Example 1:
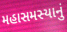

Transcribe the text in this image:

મહાસમસ્યાનું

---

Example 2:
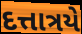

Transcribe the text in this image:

દત્તાત્રયે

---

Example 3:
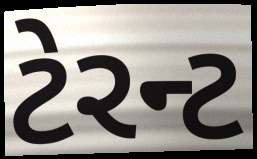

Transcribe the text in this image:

ટેરન્ટ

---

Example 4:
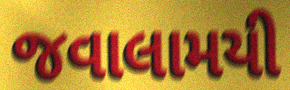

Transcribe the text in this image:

જવાલામયી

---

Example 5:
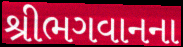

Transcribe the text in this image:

શ્રીભગવાનના